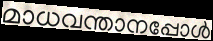
മാധവന്താനപ്പോൾ